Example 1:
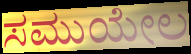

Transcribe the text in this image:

ಸಮುಯೇಲ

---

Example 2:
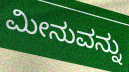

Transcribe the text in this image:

ಮೀನುವನ್ನು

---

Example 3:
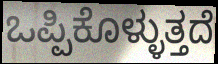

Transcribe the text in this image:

ಒಪ್ಪಿಕೊಳ್ಳುತ್ತದೆ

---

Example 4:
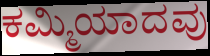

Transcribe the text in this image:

ಕಮ್ಮಿಯಾದವು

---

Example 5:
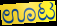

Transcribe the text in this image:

ಊಟ